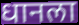
धानला